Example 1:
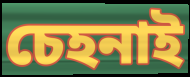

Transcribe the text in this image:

চেহনাই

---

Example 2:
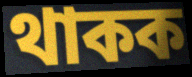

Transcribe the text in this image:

থাকক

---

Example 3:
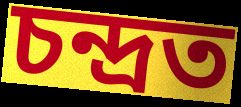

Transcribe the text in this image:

চন্দ্ৰত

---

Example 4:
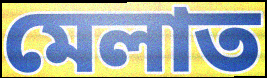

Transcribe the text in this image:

মেলাত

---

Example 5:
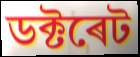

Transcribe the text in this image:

ডক্টৰেট